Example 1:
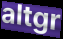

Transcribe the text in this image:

altgr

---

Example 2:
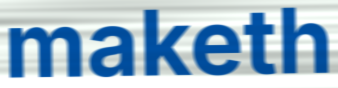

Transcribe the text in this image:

maketh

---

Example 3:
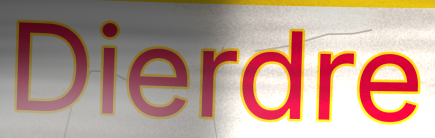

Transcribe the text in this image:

Dierdre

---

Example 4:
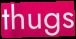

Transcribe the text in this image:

thugs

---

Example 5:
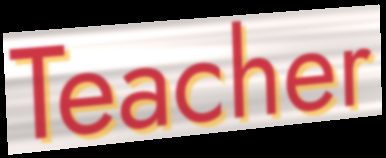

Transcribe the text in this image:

Teacher